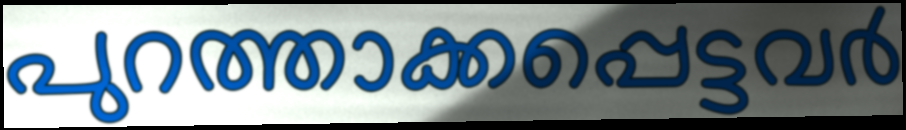
പുറത്താക്കപ്പെട്ടവർ